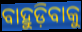
ବାହୁଡ଼ିବାକୁ